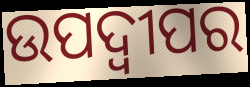
ଉପଦ୍ୱୀପର